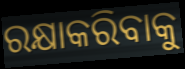
ରକ୍ଷାକରିବାକୁ